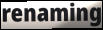
renaming